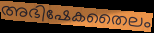
അഭിഷേകതൈലം